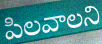
పిలవాలని